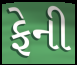
ફેની